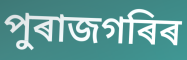
পুৰাজগৰিৰ